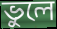
ভুলে